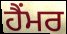
ਹੈਂਮਰ